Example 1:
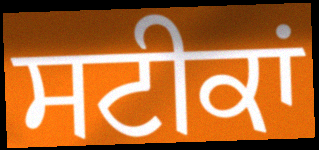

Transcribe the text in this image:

ਸਟੀਕਾਂ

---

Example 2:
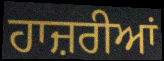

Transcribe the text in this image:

ਹਾਜ਼ਰੀਆਂ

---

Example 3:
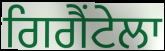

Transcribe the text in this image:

ਗਿਗੈਂਟੇਲਾ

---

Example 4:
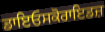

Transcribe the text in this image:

ਡਾਇਓਸਕੋਰਾਇਡਜ਼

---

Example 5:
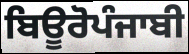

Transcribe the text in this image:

ਬਿਊਰੋਪੰਜਾਬੀ